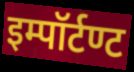
इम्पॉर्टण्ट